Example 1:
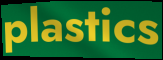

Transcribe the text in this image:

plastics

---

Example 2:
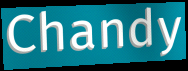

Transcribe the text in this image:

Chandy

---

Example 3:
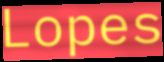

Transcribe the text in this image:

Lopes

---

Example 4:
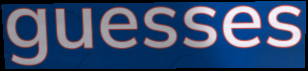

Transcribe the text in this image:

guesses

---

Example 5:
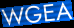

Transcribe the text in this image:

WGEA